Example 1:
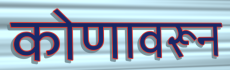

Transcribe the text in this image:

कोणावरून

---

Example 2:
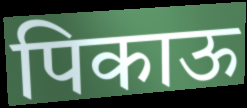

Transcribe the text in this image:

पिकाऊ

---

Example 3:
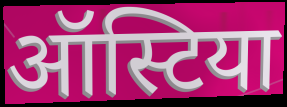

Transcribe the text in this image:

ऑस्टिया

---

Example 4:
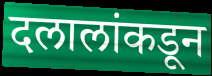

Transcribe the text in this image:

दलालांकडून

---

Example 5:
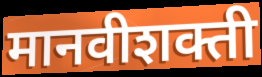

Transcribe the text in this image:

मानवीशक्ती